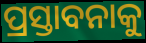
ପ୍ରସ୍ତାବନାକୁ